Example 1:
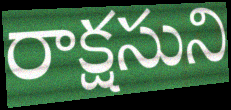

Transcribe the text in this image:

రాక్షసుని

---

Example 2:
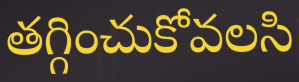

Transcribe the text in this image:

తగ్గించుకోవలసి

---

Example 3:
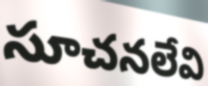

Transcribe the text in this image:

సూచనలేవి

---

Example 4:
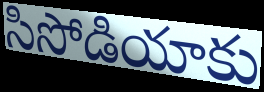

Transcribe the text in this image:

సిసోడియాకు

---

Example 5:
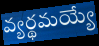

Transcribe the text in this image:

వ్యర్థమయ్యే